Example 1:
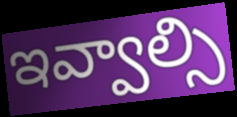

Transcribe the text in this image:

ఇవ్వాల్సి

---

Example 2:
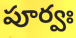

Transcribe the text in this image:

పూర్వః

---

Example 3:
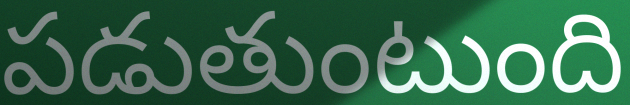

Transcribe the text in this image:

పడుతుంటుంది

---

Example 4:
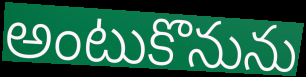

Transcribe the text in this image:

అంటుకొనును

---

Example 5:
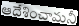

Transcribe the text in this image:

ఆదేశించామనీ